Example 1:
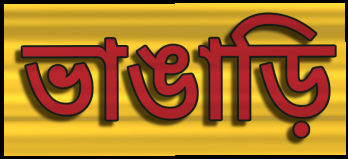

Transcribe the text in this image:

ভাঙাড়ি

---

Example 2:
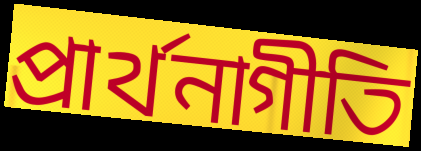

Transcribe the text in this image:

প্রার্থনাগীতি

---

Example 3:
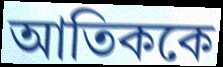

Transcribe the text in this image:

আতিককে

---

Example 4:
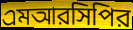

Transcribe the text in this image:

এমআরসিপির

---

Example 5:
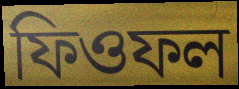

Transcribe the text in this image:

ফিওফল